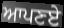
ਆਪਣਏ